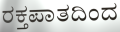
ರಕ್ತಪಾತದಿಂದ